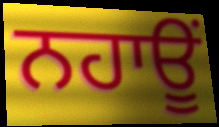
ਨਹਾਊਂ